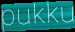
pukku